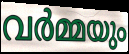
വർമ്മയും